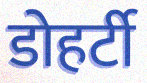
डोहर्टी